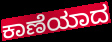
ಕಾಣೆಯಾದ